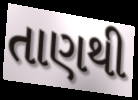
તાણથી